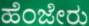
ಹೆಂಜೇರು